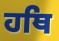
ਹਥਿ